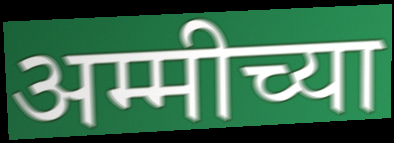
अम्मीच्या